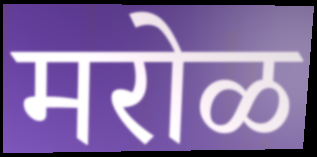
मरोळ